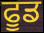
ਫੂਡ